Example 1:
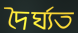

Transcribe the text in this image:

দৈৰ্ঘ্যত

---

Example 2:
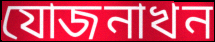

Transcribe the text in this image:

যোজনাখন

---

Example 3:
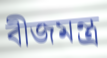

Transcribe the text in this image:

বীজমন্ত্ৰ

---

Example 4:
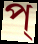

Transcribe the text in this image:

প্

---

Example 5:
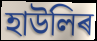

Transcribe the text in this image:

হাউলিৰ